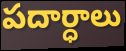
పదార్ధాలు